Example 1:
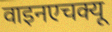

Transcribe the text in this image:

वाइनएचक्यू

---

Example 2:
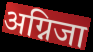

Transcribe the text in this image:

अग्निजा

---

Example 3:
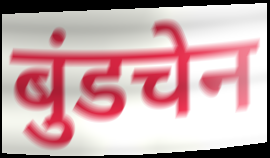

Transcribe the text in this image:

बुंडचेन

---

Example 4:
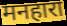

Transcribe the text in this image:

मनहारा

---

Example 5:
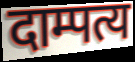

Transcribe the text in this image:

दाम्पत्य